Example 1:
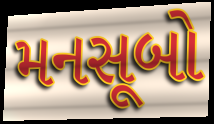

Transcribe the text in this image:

મનસૂબો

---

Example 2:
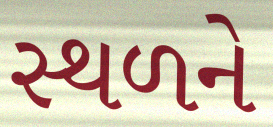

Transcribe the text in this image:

સ્‍થળને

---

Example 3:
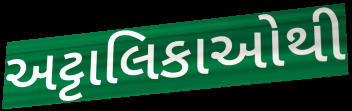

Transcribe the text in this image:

અટ્ટાલિકાઓથી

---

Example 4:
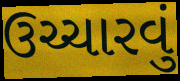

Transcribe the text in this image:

ઉચ્ચારવું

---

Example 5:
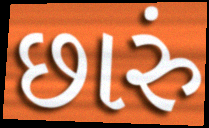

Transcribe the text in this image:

છારું